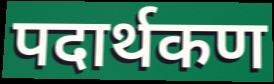
पदार्थकण